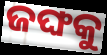
ଜଙ୍ଘକୁ